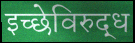
इच्छेविरुद्ध